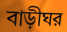
বাড়ীঘর